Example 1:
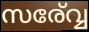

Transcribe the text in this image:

സര്വ്വേ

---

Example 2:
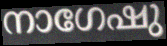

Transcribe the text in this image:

നാഗേഷു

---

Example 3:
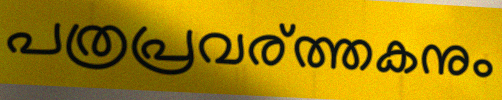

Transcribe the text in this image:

പത്രപ്രവര്ത്തകനും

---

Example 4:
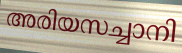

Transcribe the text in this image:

അരിയസച്ചാനി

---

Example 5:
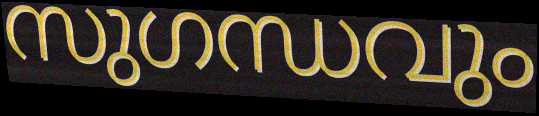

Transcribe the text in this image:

സുഗന്ധവും